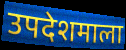
उपदेशमाला